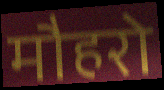
मौहरो